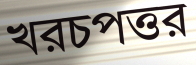
খরচপত্তর